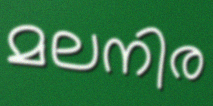
മലനിര